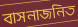
বাসনাজনিত